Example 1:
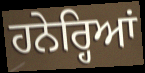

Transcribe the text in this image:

ਹਨੇਰ੍ਹਿਆਂ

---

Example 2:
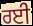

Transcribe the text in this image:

ਰਈ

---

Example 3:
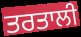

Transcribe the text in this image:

ਤਰਤਾਲੀ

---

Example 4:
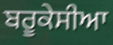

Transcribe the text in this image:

ਬਰੂਕੇਸੀਆ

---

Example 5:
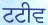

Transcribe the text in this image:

ਟਟੀਵ